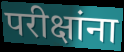
परीक्षांना